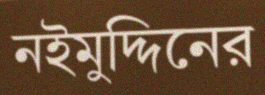
নইমুদ্দিনের